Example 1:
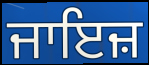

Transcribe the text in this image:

ਜਾਇਜ਼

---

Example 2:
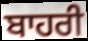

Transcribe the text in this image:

ਬਾਹਰੀ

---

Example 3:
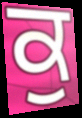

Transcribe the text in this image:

ਕੁ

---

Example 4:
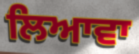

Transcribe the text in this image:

ਲਿਆਵਾ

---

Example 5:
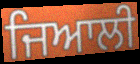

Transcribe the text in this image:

ਜਿਆਲੀ